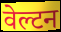
वेल्टन